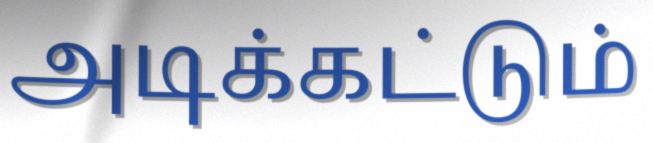
அடிக்கட்டும்